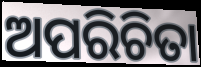
ଅପରିଚିତା